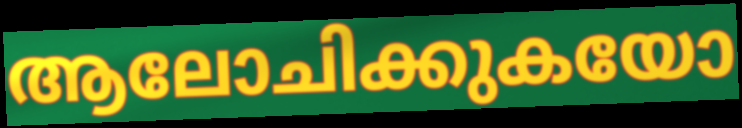
ആലോചിക്കുകയോ